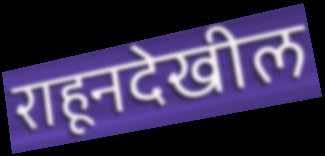
राहूनदेखील